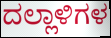
ದಲ್ಲಾಳಿಗಳ